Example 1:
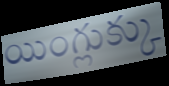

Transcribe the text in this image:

యింగ్లుక్కు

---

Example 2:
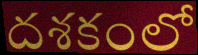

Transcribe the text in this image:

దశకంలో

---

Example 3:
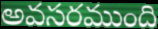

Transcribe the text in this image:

అవసరముంది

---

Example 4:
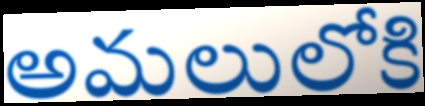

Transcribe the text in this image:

అమలులోకి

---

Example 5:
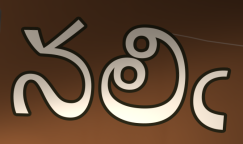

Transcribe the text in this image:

నలిఁ